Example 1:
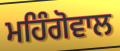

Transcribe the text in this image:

ਮਹਿੰਗੋਵਾਲ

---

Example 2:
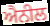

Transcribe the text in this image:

ਐਨੀਲ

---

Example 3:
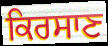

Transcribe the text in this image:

ਕਿਰਸਾਣ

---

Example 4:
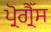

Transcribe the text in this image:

ਪ੍ਰੋਗ੍ਰੈੱਸ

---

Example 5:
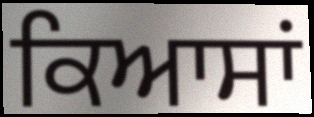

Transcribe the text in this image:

ਕਿਆਸਾਂ